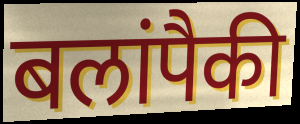
बलांपैकी